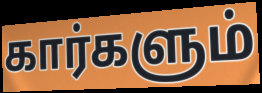
கார்களும்